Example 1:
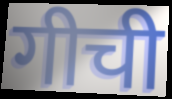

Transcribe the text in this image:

गीची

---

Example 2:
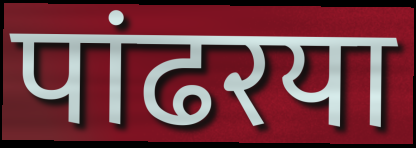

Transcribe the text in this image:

पांढरया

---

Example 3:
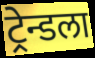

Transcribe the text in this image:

ट्रेन्डला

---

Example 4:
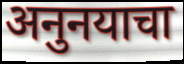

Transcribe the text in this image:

अनुनयाचा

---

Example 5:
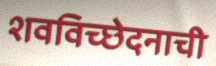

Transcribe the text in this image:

शवविच्छेदनाची